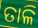
ତାଳି